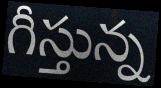
గీస్తున్న